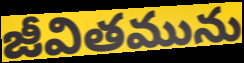
జీవితమును